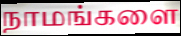
நாமங்களை